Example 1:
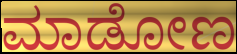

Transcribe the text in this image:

ಮಾಡೋಣ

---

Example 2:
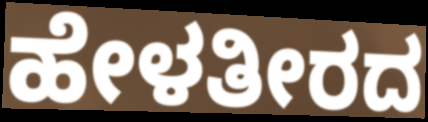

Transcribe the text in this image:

ಹೇಳತೀರದ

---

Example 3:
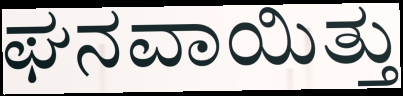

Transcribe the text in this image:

ಘನವಾಯಿತ್ತು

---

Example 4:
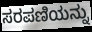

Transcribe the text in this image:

ಸರಪಣಿಯನ್ನು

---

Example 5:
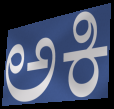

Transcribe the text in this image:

ಅಕಿ